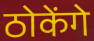
ठोकेंगे